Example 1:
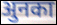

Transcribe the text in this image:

अुनका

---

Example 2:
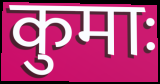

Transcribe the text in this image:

कुमाः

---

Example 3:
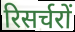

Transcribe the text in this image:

रिसर्चरों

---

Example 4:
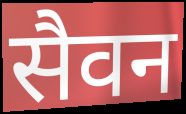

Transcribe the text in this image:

सैवन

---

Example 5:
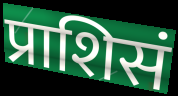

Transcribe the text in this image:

प्राशिसं